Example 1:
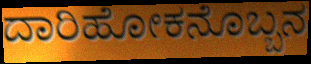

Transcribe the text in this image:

ದಾರಿಹೋಕನೊಬ್ಬನ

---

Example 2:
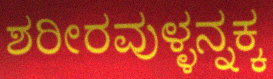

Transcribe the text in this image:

ಶರೀರವುಳ್ಳನ್ನಕ್ಕ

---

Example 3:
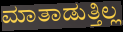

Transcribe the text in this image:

ಮಾತಾಡುತ್ತಿಲ್ಲ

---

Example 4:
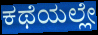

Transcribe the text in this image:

ಕಥೆಯಲ್ಲೇ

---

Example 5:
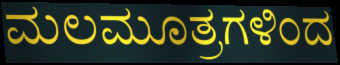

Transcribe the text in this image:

ಮಲಮೂತ್ರಗಳಿಂದ